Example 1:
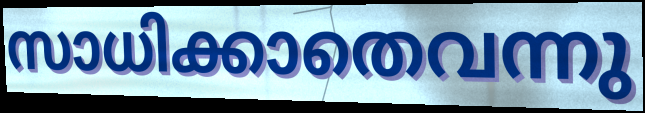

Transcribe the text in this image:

സാധിക്കാതെവന്നു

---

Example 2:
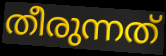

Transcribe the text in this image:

തീരുന്നത്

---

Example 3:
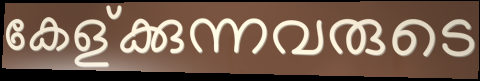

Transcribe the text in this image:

കേള്ക്കുന്നവരുടെ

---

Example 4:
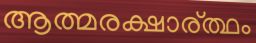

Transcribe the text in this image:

ആത്മരക്ഷാര്ത്ഥം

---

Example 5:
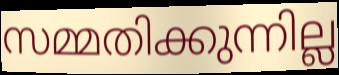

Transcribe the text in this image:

സമ്മതിക്കുന്നില്ല